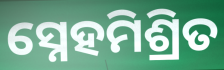
ସ୍ନେହମିଶ୍ରିତ